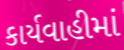
કાર્યવાહીમાં